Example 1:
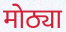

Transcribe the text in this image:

मोठ्या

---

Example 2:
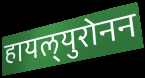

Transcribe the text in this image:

हायल्युरोनन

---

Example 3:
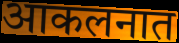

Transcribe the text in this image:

आकलनात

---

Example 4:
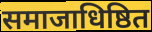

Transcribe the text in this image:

समाजाधिष्ठित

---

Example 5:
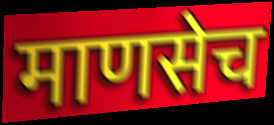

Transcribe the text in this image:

माणसेच